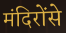
मंदिरोंसे